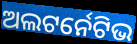
ଅଲଟର୍ନେଟିଭ